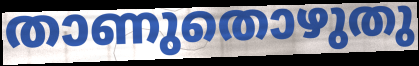
താണുതൊഴുതു